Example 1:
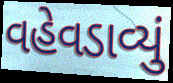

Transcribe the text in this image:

વહેવડાવ્યું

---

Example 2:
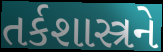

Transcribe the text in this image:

તર્કશાસ્ત્રને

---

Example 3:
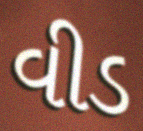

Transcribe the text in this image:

વીડ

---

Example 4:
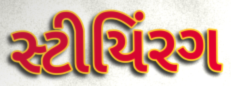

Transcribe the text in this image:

સ્ટીયિંરગ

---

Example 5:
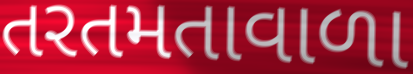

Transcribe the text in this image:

તરતમતાવાળા